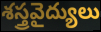
శస్త్రవైద్యులు